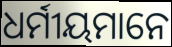
ଧର୍ମୀୟମାନେ